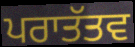
ਪਰਾਤੱਤਵ